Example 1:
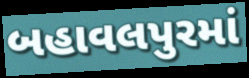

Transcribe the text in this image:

બહાવલપુરમાં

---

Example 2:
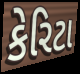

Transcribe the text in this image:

કેરિટા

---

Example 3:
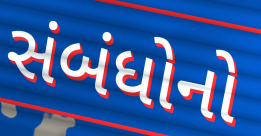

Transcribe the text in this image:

સંબંધોનો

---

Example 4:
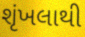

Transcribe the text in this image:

શૃંખલાથી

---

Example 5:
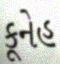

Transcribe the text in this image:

કૂનેહ